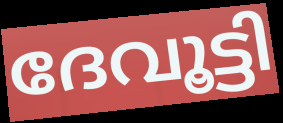
ദേവൂട്ടി